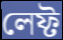
লেফ্ট